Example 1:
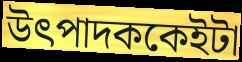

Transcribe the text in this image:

উৎপাদককেইটা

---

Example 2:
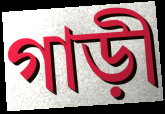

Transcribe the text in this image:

গাড়ী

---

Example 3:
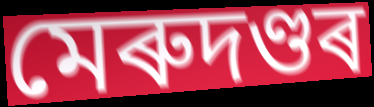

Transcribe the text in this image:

মেৰুদণ্ডৰ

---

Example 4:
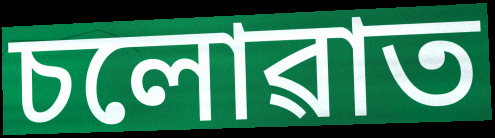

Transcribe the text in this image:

চলোৱাত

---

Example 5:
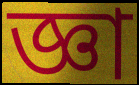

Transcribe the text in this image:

জ্ঞা